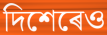
দিশেৰেও